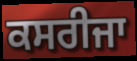
ਕਸਰੀਜਾ